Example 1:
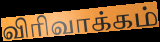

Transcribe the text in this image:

விரிவாக்கம்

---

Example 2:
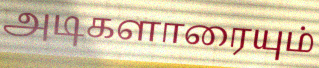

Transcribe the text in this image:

அடிகளாரையும்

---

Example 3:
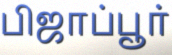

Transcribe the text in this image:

பிஜாப்பூர்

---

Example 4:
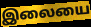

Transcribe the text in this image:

இலையை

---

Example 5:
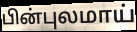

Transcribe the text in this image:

பின்புலமாய்